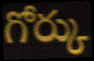
గోర్కు